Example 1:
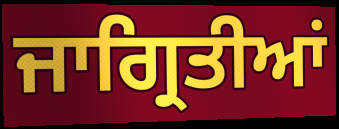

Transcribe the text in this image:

ਜਾਗ੍ਰਿਤੀਆਂ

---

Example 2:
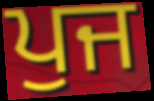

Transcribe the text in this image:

ਪੁਜ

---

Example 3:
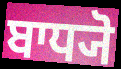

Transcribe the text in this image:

ਬਾਧ੍ਯੋ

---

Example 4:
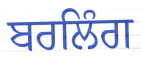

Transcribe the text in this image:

ਬਰਲਿੰਗ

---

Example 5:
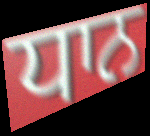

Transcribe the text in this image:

ਧਾਨ